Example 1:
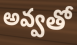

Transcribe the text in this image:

అవ్వతో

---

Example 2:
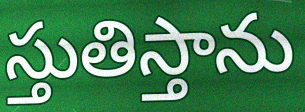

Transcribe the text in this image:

స్తుతిస్తాను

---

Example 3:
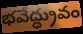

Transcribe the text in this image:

భవేద్ధ్రువం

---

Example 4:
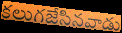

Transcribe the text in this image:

కలుగజేసినవాడు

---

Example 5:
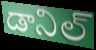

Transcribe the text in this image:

డానిల్